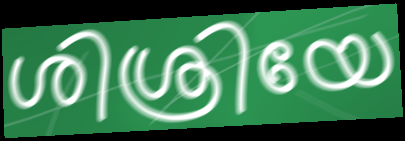
ശിശ്രിയേ